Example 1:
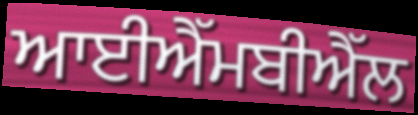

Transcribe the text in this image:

ਆਈਐੱਮਬੀਐੱਲ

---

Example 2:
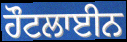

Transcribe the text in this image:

ਹੌਟਲਾਈਨ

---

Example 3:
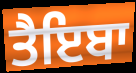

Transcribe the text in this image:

ਤੈਇਬਾ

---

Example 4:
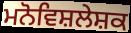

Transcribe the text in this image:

ਮਨੋਵਿਸ਼ਲੇਸ਼ਕ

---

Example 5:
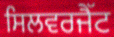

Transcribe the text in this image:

ਸਿਲਵਰਜੈੱਟ